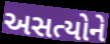
અસત્યોને